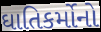
ઘાતિકર્મોનો